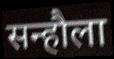
सन्हौला